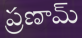
ప్రణామ్